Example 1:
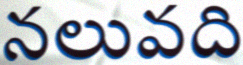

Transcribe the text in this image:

నలువది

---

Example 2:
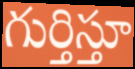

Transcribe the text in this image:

గుర్తిస్తూ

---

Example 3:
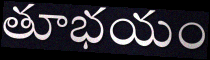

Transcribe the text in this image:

తూభయం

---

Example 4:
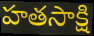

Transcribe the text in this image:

హతసాక్షి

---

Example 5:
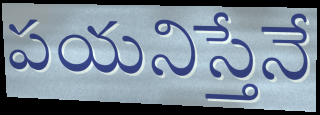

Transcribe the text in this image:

పయనిస్తేనే